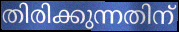
തിരിക്കുന്നതിന്